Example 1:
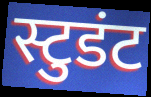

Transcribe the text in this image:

स्टुडंट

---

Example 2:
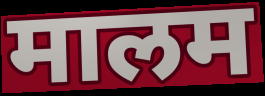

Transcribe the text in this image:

मालम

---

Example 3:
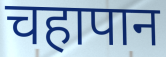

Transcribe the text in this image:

चहापान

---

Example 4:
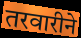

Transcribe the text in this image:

तरवारीने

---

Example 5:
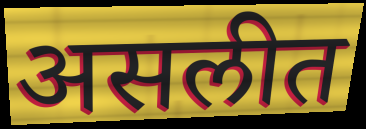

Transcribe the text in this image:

असलीत